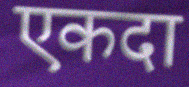
एकदा